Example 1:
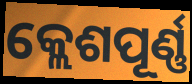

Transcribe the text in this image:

କ୍ଲେଶପୂର୍ଣ୍ଣ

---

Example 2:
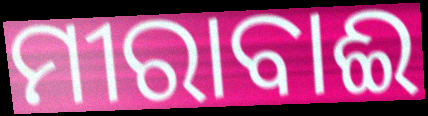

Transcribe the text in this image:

ମୀରାବାଈ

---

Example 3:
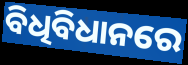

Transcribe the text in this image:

ବିଧିବିଧାନରେ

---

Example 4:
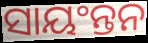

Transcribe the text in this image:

ସାୟଂନ୍ତନ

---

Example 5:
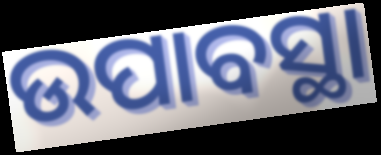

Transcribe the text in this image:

ଉପାବସ୍ଥା